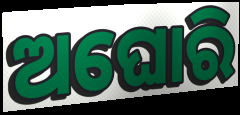
ଅଘୋରି